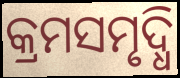
କ୍ରମସମୃଦ୍ଧି